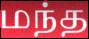
மந்த